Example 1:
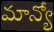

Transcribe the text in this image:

మాన్యో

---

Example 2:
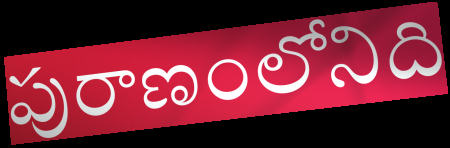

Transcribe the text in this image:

పురాణంలోనిది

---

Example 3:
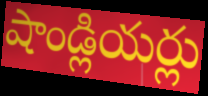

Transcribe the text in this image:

షాండ్లియర్లు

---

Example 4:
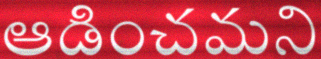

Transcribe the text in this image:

ఆడించమని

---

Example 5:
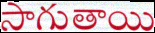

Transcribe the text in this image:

సాగుతాయి